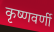
कृष्णवर्णी